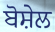
ਬੋਸ਼ੇਲ